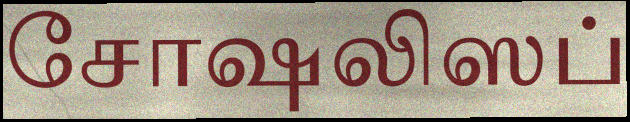
சோஷலிஸப்